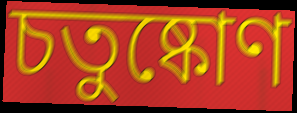
চতুষ্কোণ